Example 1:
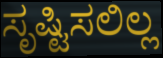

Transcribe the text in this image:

ಸೃಷ್ಟಿಸಲಿಲ್ಲ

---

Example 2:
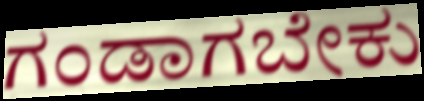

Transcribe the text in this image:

ಗಂಡಾಗಬೇಕು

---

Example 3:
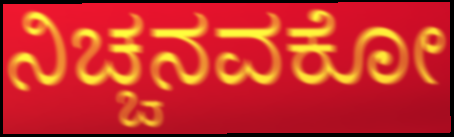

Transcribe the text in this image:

ನಿಚ್ಚನವಕೋ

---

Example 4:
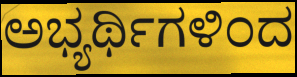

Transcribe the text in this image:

ಅಭ್ಯರ್ಥಿಗಳಿಂದ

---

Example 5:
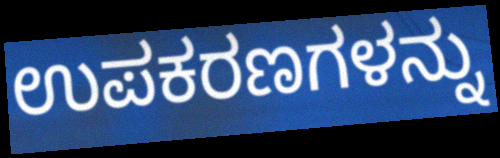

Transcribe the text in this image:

ಉಪಕರಣಗಳನ್ನು